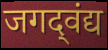
जगद्‌वंद्य